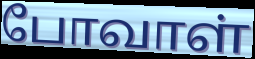
போவாள்